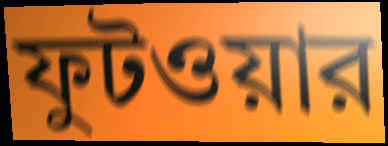
ফুটওয়ার